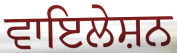
ਵਾਇਲੇਸ਼ਨ